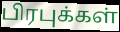
பிரபுக்கள்